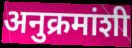
अनुक्रमांशी